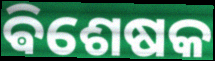
ଵିଶେଷକ